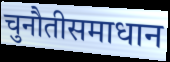
चुनौतीसमाधान